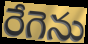
రేగెను